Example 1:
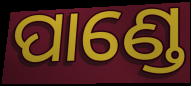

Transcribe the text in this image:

ପାଣ୍ଡେ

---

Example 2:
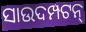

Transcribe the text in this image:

ସାଉଦମ୍ପଟନ୍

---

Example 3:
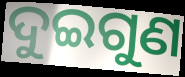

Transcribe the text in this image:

ଦୁଇଗୁଣ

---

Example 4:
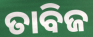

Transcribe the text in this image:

ତାବିଜ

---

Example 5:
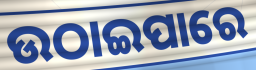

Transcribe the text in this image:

ଉଠାଇପାରେ